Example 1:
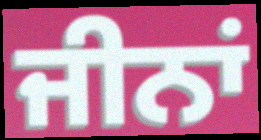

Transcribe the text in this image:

ਜੀਨਾਂ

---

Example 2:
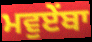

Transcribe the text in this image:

ਮਵੁਏਂਬਾ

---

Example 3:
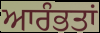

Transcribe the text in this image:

ਆਰੰਭਤਾਂ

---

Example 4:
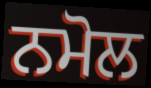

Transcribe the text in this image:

ਨਮੋਲ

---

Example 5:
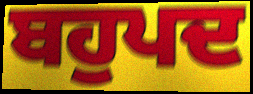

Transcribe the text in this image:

ਬਹੁਪਦ